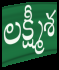
లక్ష్మీశ